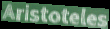
Aristoteles